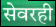
सेवरही